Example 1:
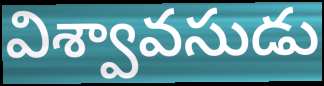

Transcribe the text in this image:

విశ్వావసుడు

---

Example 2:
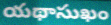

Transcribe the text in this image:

యథాసుఖం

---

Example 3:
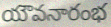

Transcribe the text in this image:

యౌవనారంభ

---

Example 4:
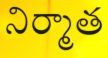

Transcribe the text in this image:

నిర్మాత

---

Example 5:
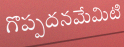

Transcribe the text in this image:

గొప్పదనమేమిటి